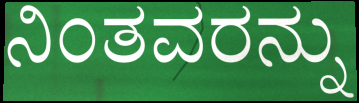
ನಿಂತವರನ್ನು